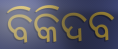
ବିକିଦବ